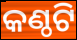
କଣ୍ଠଟି